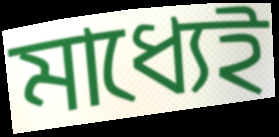
মাধ্যেই